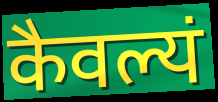
कैवल्यं